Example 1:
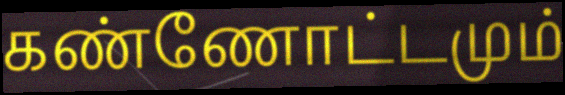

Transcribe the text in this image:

கண்ணோட்டமும்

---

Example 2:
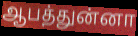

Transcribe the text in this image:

ஆபத்துன்னா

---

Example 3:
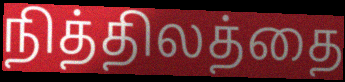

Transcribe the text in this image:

நித்திலத்தை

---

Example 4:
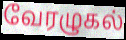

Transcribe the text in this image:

வேரழுகல்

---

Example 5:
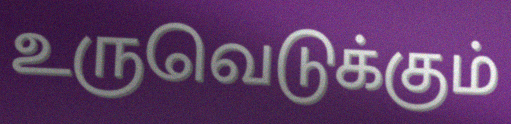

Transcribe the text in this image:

உருவெடுக்கும்